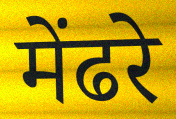
मेंढरे